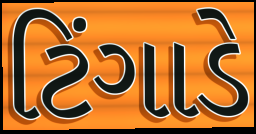
ટિંગાડે